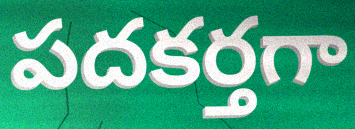
పదకర్తగా